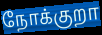
நோக்குறா